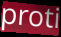
proti